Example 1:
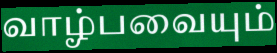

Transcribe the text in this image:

வாழ்பவையும்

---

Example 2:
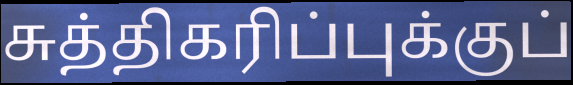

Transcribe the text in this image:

சுத்திகரிப்புக்குப்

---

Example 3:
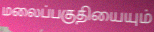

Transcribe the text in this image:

மலைப்பகுதியையும்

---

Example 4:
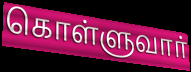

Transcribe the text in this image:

கொள்ளுவார்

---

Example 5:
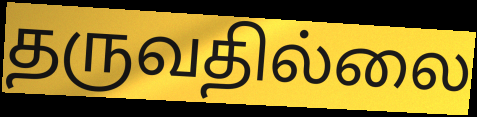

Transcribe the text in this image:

தருவதில்லை